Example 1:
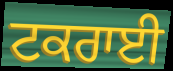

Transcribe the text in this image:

ਟਕਰਾਈ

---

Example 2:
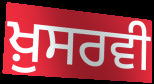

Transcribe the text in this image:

ਖ਼ੁਸਰਵੀ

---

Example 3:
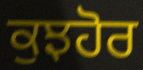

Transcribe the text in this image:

ਕੁਝਹੋਰ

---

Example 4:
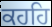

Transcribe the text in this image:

ਕਹਹਿ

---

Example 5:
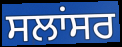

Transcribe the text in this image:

ਸਲਾਂਸਰ